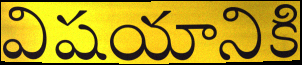
విషయానికి